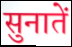
सुनातें